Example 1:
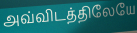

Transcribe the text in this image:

அவ்விடத்திலேயே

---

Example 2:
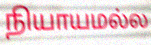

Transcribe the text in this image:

நியாயமல்ல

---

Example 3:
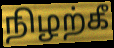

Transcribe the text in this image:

நிழற்கீ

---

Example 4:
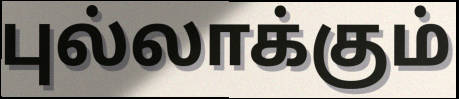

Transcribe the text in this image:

புல்லாக்கும்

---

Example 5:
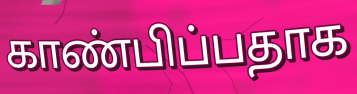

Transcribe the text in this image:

காண்பிப்பதாக